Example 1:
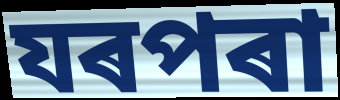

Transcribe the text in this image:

যৰপৰা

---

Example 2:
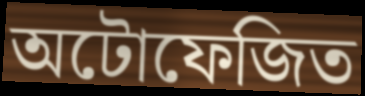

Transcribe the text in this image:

অটোফেজিত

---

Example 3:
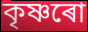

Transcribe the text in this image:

কৃষ্ণৰো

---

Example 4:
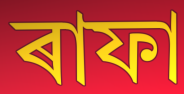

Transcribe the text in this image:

ৰাফা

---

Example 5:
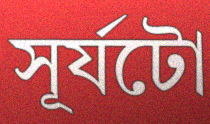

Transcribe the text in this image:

সূৰ্যটো